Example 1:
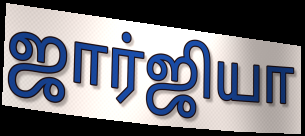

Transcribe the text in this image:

ஜார்ஜியா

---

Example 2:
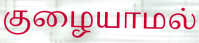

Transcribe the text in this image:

குழையாமல்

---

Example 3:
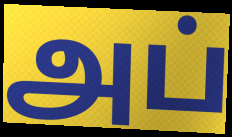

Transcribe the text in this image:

அப்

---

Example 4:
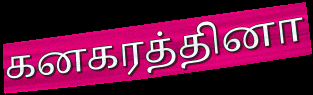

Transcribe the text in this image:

கனகரத்தினா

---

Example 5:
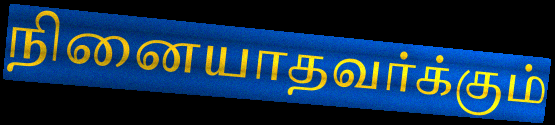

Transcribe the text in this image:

நினையாதவர்க்கும்